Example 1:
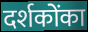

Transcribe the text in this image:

दर्शकोंका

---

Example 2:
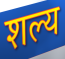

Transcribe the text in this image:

शल्य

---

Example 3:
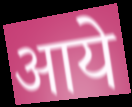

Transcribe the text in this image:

आये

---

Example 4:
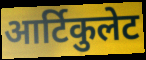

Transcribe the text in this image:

आर्टिकुलेट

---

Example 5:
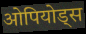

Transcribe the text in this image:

ओपियोड्स